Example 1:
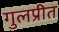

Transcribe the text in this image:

गुलप्रीत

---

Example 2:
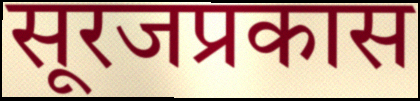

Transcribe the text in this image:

सूरजप्रकास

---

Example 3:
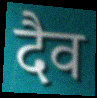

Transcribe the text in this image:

दैव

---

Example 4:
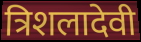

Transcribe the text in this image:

त्रिशलादेवी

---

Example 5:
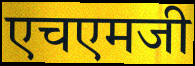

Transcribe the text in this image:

एचएमजी